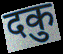
दकु